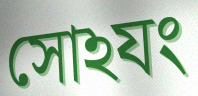
সোঽযং